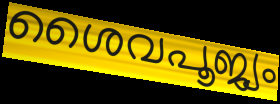
ശൈവപൂജ്യം